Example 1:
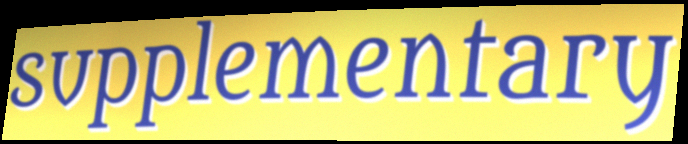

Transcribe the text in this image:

supplementary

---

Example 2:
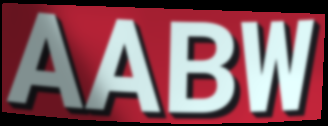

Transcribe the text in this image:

AABW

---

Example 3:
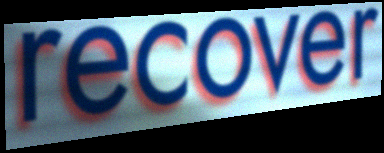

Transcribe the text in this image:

recover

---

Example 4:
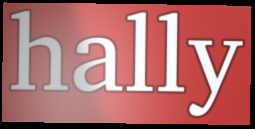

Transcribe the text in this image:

hally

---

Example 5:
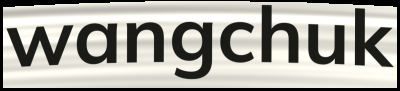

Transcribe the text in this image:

wangchuk